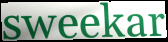
sweekar